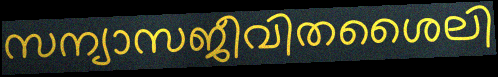
സന്യാസജീവിതശൈലി